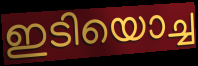
ഇടിയൊച്ച